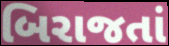
બિરાજતાં